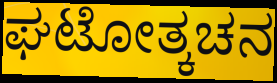
ಘಟೋತ್ಕಚನ